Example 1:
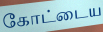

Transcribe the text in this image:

கோட்டைய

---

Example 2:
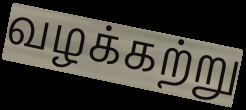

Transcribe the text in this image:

வழக்கற்று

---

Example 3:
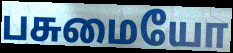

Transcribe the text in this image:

பசுமையோ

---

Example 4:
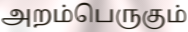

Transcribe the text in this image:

அறம்பெருகும்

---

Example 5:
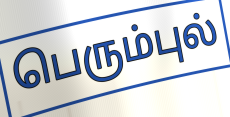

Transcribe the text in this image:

பெரும்புல்